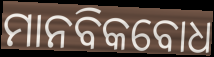
ମାନବିକବୋଧ